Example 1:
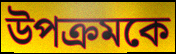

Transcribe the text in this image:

উপক্রমকে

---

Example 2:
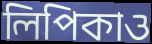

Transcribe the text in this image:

লিপিকাও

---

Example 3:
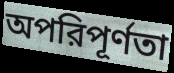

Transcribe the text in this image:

অপরিপূর্ণতা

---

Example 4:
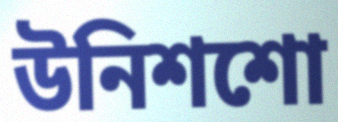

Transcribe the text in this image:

উনিশশো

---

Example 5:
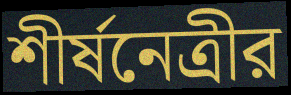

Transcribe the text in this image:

শীর্ষনেত্রীর